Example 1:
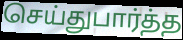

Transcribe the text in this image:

செய்துபார்த்த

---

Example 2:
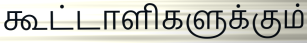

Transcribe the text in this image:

கூட்டாளிகளுக்கும்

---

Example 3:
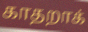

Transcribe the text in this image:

காதறாக்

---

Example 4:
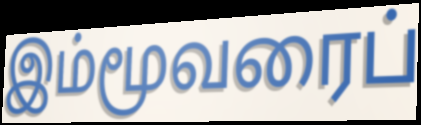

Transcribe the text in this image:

இம்மூவரைப்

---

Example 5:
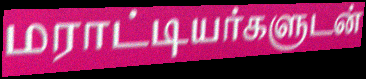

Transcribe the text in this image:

மராட்டியர்களுடன்